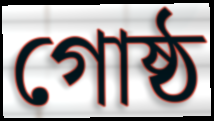
গোষ্ঠ